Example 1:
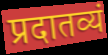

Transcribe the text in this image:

प्रदातव्यं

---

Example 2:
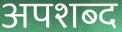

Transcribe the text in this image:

अपशब्‍द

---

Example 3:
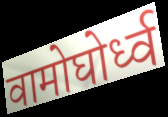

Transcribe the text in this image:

वामोघोर्ध्व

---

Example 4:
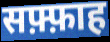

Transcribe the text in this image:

सफ़्फ़ाह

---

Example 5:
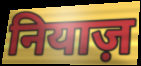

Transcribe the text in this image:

नियाज़